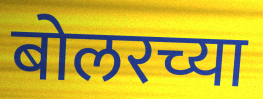
बोलरच्या